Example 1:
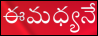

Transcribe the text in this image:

ఈమధ్యనే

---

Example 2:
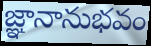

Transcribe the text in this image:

జ్ఞానానుభవం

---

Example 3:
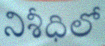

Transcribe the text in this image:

నిశీధిలో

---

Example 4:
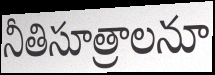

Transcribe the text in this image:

నీతిసూత్రాలనూ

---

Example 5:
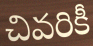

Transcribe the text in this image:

చివరికీ